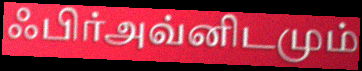
ஃபிர்அவ்னிடமும்